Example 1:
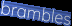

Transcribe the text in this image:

brambles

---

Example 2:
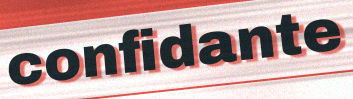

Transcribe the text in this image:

confidante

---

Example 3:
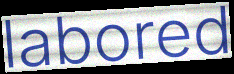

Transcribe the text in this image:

labored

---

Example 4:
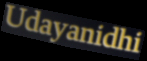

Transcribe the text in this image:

Udayanidhi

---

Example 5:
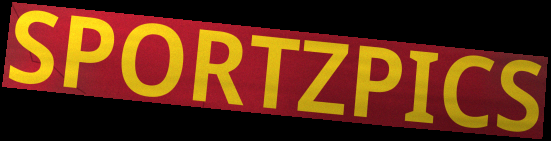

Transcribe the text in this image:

SPORTZPICS